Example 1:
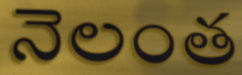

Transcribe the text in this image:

నెలంత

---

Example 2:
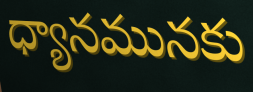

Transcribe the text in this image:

ధ్యానమునకు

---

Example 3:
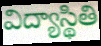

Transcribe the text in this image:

విద్యాస్థితి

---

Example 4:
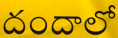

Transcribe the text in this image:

దందాలో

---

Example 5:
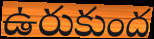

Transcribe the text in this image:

ఉరుకుంద